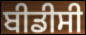
ਬੀਡੀਸੀ